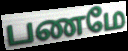
பணமே